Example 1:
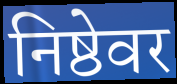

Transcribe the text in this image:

निष्ठेवर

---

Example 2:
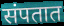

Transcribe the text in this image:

संपतात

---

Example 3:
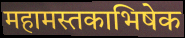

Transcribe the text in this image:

महामस्तकाभिषेक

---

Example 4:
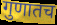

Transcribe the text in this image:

गुणातच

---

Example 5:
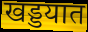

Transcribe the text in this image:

खड्डयात